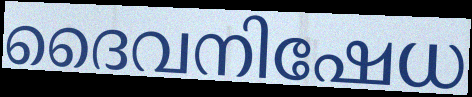
ദൈവനിഷേധ